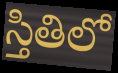
స్తితిలో